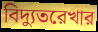
বিদ্যুতরেখার